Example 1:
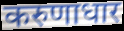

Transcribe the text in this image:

करुणाधार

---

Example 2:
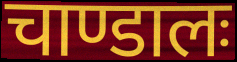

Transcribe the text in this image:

चाण्डालः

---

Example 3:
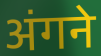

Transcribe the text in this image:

अंगने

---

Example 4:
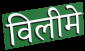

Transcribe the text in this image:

विलीमे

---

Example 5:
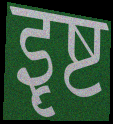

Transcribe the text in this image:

इृष्ट